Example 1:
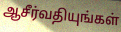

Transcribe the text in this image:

ஆசீர்வதியுங்கள்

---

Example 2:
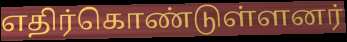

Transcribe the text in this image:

எதிர்கொண்டுள்ளனர்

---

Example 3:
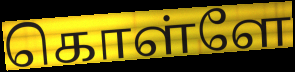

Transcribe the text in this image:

கொள்ளே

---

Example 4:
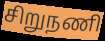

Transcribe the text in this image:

சிறுநணி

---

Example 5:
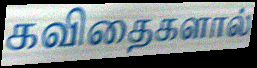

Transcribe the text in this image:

கவிதைகளால்